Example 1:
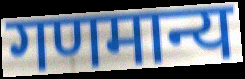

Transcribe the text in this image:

गणमान्य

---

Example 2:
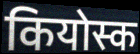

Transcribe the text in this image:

कियोस्क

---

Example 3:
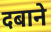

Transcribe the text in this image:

दबाने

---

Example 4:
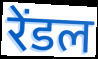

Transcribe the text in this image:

रेंडल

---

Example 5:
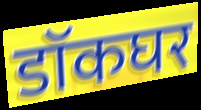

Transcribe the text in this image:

डॉकघर